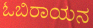
ಓಬಿರಾಯನ